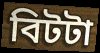
বিটটা